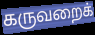
கருவறைக்